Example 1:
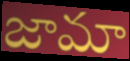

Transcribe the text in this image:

జామా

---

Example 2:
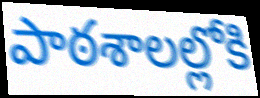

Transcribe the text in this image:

పాఠశాలల్లోకి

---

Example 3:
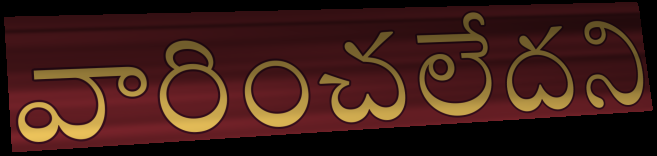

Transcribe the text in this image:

వారించలేదని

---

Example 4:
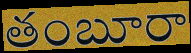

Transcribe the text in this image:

తంబూరా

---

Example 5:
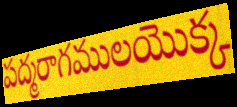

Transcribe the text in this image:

పద్మరాగములయొక్క